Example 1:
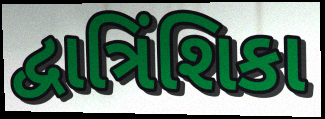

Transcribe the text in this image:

દ્વાત્રિંશિકા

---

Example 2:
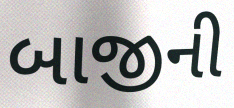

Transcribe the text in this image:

બાજીની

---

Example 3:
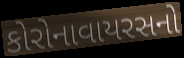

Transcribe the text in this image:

કોરોનાવાયરસનો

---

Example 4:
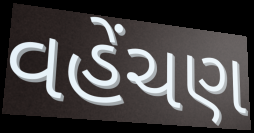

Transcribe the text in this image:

વહેંચણ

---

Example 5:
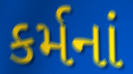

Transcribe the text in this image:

કર્મનાં